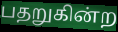
பதறுகின்ற